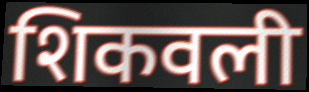
शिकवली